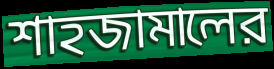
শাহজামালের